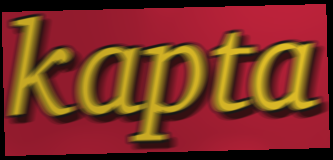
kapta